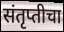
संतृप्तीचा